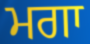
ਮਗਾ